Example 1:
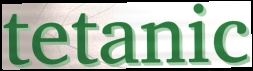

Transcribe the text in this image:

tetanic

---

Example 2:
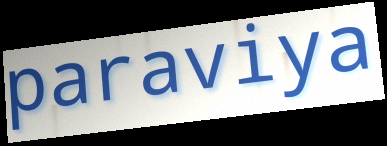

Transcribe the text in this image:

paraviya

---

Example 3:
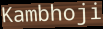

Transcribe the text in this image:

Kambhoji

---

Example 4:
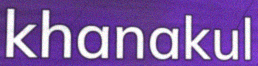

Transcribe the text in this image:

khanakul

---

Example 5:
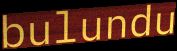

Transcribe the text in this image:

bulundu